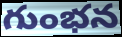
గుంభన